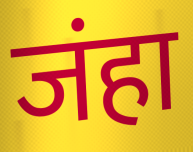
जंहा